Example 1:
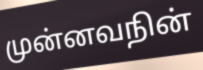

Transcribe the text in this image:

முன்னவநின்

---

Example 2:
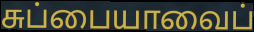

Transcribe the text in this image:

சுப்பையாவைப்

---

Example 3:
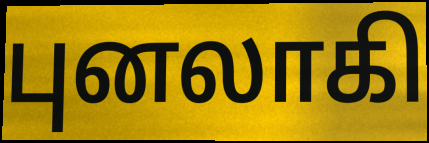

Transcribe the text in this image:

புனலாகி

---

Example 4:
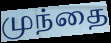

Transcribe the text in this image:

முந்தை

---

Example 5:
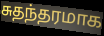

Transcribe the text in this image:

சுதந்தரமாக